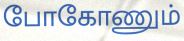
போகோணும்